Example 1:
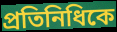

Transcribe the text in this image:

প্রতিনিধিকে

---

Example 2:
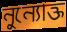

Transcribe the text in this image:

নুন্যোক্ত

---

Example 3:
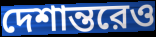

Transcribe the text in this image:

দেশান্তরেও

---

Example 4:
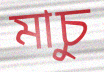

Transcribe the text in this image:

মাচু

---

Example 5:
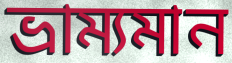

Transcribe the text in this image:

ভ্রাম্যমান